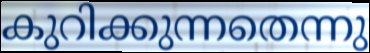
കുറിക്കുന്നതെന്നു